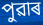
পুৱাৰ